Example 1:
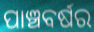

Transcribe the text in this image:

ପାଞ୍ଚବର୍ଷର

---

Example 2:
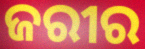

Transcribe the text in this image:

ଜରୀର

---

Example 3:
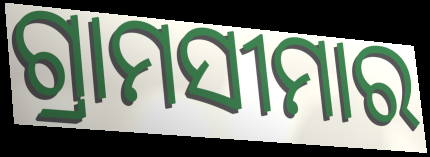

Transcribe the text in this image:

ଗ୍ରାମସୀମାର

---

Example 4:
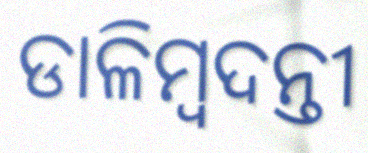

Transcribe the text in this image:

ଡାଳିମ୍ବଦନ୍ତୀ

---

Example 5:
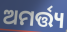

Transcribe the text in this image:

ଅମର୍ତ୍ତ୍ୟ